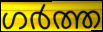
ഗർത്ത